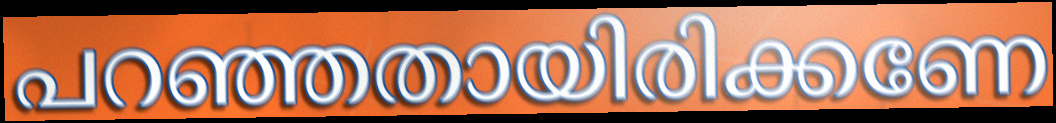
പറഞ്ഞതായിരിക്കണേ